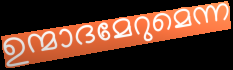
ഉന്മാദമേറുമെന്ന